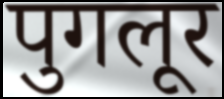
पुगलूर